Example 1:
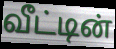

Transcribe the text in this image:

வீட்டின்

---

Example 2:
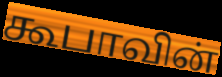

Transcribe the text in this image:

கூபாவின்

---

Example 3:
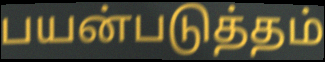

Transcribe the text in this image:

பயன்படுத்தம்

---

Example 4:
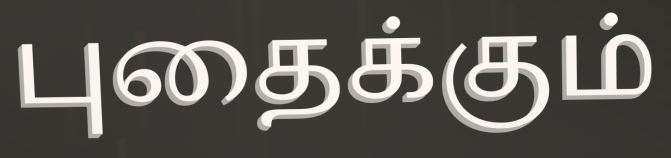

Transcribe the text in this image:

புதைக்கும்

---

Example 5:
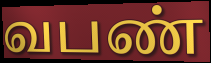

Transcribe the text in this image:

வபண்